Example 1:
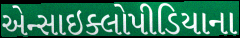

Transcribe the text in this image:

એન્સાઇક્લોપીડિયાના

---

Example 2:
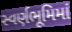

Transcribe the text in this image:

સ્વર્ણભૂમિમાં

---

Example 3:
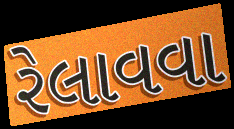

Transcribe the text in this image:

રેલાવવા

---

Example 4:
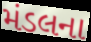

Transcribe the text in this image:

મંડલના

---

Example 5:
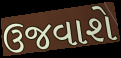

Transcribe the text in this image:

ઉજવાશે